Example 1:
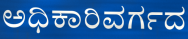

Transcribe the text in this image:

ಅಧಿಕಾರಿವರ್ಗದ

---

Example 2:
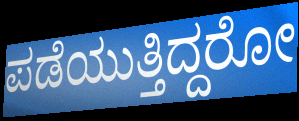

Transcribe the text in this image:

ಪಡೆಯುತ್ತಿದ್ದರೋ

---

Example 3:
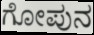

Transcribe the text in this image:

ಗೋಪುನ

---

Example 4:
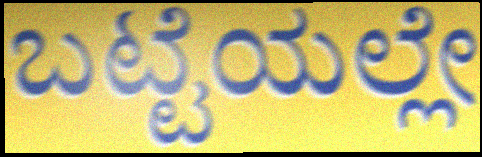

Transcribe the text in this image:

ಬಟ್ಟೆಯಲ್ಲೇ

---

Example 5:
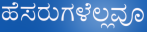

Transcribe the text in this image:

ಹೆಸರುಗಳೆಲ್ಲವೂ